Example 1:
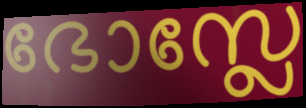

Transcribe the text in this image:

ഭോസ്ലേ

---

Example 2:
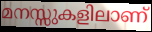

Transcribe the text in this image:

മനസ്സുകളിലാണ്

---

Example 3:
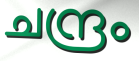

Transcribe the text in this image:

ചന്ദ്രം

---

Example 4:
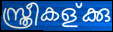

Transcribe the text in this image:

സ്ത്രീകള്ക്കു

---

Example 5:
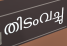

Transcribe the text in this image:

തിടംവച്ചു